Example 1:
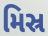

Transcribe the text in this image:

મિસ્ર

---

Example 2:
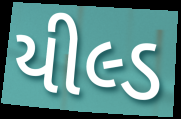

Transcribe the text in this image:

યીલ્ડ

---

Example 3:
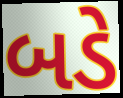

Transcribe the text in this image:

બડે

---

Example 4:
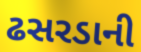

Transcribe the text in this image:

ઢસરડાની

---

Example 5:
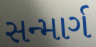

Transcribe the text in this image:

સન્માર્ગ